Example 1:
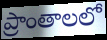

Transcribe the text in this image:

ప్రాంతాలలో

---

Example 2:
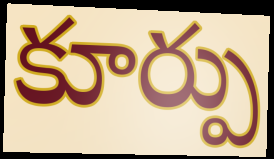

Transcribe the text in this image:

కూర్పు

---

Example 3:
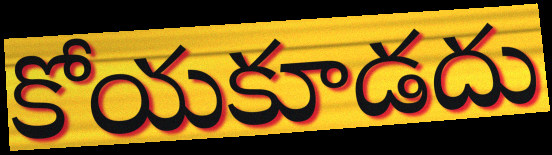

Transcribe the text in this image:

కోయకూడదు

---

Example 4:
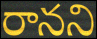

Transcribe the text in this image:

రానని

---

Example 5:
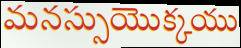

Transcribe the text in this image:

మనస్సుయొక్కయు